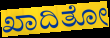
ಖಾದಿತೋ